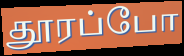
தூரப்போ